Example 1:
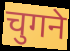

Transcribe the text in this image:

चुगने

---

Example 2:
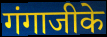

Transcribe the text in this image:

गंगाजीके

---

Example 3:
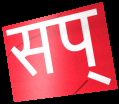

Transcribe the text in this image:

सप्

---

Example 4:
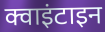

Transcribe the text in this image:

क्वाइंटाइन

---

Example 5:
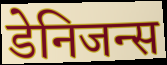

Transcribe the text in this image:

डेनिजन्स